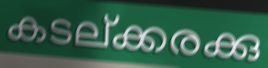
കടല്ക്കരക്കു